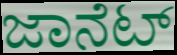
ಜಾನೆಟ್